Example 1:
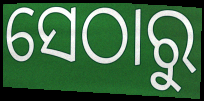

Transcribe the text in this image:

ସେଠାରୁ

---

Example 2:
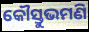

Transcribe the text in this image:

କୌସ୍ତୁଭମଣି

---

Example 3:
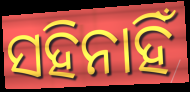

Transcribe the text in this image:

ସହିନାହିଁ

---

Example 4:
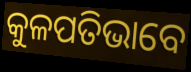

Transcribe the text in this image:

କୁଳପତିଭାବେ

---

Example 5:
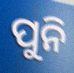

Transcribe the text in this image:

ପୁନି